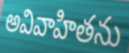
అవివాహితను